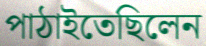
পাঠাইতেছিলেন